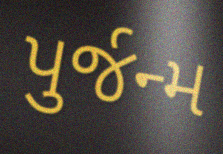
પુર્જન્મ